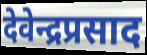
देवेन्द्रप्रसाद